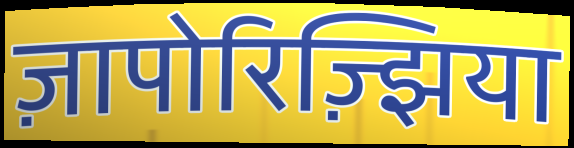
ज़ापोरिज़्झिया